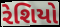
રેશિયો